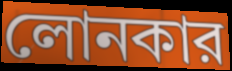
লোনকার